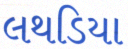
લથડિયા